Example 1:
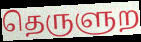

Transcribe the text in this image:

தெருளுற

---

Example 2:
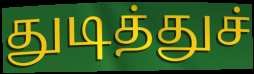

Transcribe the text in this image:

துடித்துச்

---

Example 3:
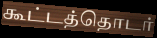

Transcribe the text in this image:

கூட்டத்தொடர்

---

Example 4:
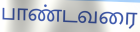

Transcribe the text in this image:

பாண்டவரை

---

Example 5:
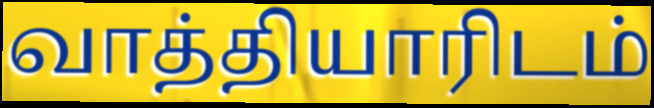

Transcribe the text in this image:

வாத்தியாரிடம்